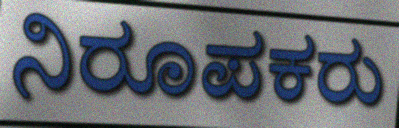
ನಿರೂಪಕರು